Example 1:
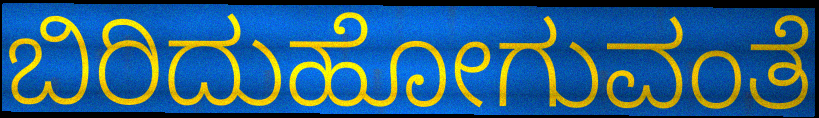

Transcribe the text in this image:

ಬಿರಿದುಹೋಗುವಂತೆ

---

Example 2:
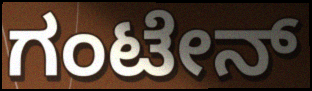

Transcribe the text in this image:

ಗಂಟೇನ್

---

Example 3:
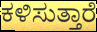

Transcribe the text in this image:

ಕಳಿಸುತ್ತಾರೆ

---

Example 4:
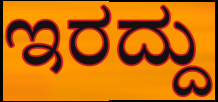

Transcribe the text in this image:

ಇರದ್ದು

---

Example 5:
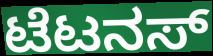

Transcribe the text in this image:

ಟೆಟನಸ್